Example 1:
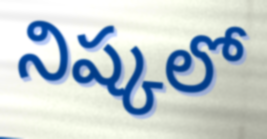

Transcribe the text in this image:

నిష్కలో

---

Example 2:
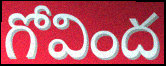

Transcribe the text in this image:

గోవింద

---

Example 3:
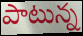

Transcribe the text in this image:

పాటున్న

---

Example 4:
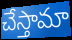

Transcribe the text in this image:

చేస్తామా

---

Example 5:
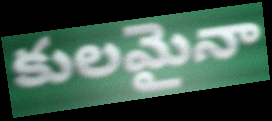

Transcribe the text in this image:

కులమైనా